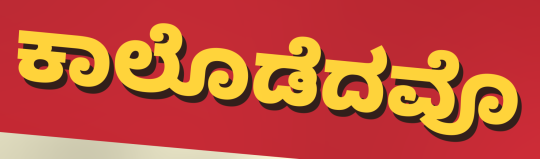
ಕಾಲೊಡೆದವೊ